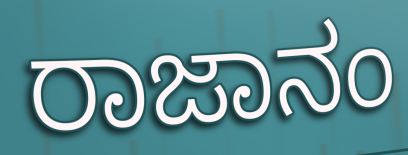
ರಾಜಾನಂ